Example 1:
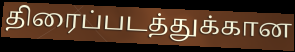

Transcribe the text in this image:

திரைப்படத்துக்கான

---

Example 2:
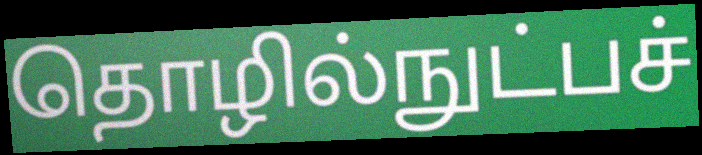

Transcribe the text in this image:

தொழில்நுட்பச்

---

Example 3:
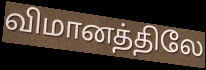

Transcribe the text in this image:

விமானத்திலே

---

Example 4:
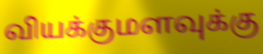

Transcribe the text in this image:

வியக்குமளவுக்கு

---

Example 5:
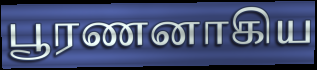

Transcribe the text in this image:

பூரணனாகிய